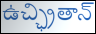
ఉచ్ఛ్రితాన్